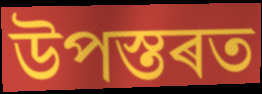
উপস্তৰত